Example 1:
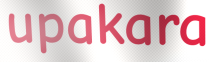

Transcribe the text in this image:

upakara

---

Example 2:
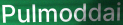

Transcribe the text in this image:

Pulmoddai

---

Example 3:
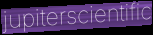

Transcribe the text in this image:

jupiterscientific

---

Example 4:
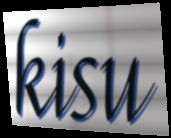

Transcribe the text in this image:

kisu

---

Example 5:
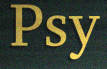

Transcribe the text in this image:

Psy